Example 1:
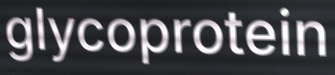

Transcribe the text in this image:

glycoprotein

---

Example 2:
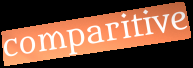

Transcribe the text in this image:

comparitive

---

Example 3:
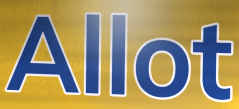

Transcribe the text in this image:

Allot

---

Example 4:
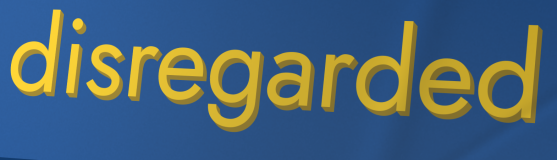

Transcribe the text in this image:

disregarded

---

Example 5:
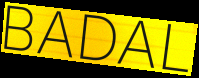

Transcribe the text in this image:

BADAL